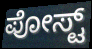
ಪೋಸ್ಟ್